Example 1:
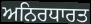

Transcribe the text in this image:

ਅਨਿਰਧਾਰਤ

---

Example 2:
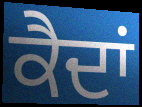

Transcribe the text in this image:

ਕੈਦਾਂ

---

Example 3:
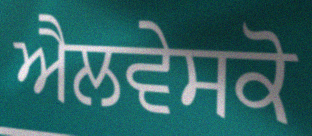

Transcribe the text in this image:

ਐਲਵੇਸਕੋ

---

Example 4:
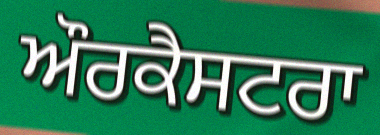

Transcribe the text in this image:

ਔਰਕੈਸਟਰਾ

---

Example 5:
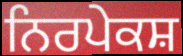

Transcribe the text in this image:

ਨਿਰਪੇਕਸ਼